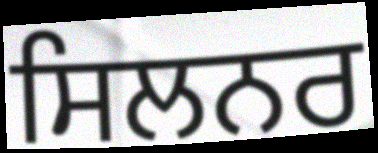
ਸਿਲਨਰ